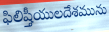
ఫిలిష్తీయులదేశమును